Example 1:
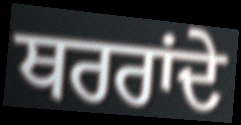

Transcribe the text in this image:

ਥਰਰਾਂਦੇ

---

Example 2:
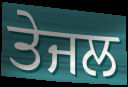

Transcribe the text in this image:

ਤੇਜਲ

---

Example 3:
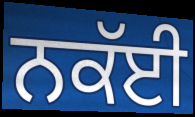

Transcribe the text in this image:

ਨਕੱਈ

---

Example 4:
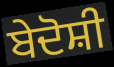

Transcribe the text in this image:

ਬੇਦੋਸ਼ੀ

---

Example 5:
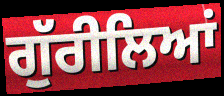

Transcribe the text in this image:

ਗੁੱਰੀਲਿਆਂ